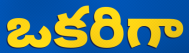
ఒకరిగా